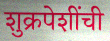
शुक्रपेशींची